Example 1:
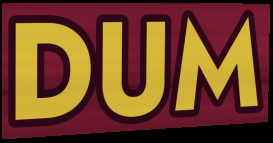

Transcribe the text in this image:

DUM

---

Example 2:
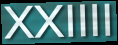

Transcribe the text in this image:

XXIIII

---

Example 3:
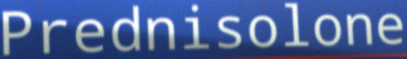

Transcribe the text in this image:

Prednisolone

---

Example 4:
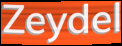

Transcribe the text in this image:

Zeydel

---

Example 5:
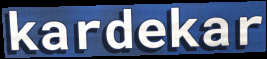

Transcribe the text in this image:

kardekar